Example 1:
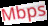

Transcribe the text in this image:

Mbps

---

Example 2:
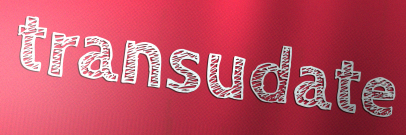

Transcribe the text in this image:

transudate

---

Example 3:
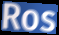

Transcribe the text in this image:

Ros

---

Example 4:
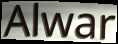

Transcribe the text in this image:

Alwar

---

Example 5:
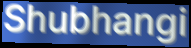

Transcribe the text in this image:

Shubhangi